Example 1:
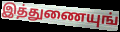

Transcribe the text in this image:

இத்துணையுங்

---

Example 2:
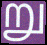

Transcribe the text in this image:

று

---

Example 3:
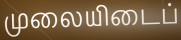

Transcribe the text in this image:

முலையிடைப்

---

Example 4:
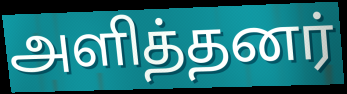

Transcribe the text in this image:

அளித்தனர்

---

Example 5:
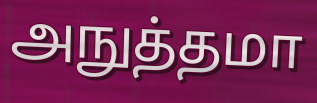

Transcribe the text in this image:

அநுத்தமா